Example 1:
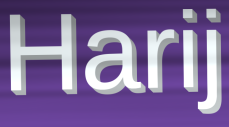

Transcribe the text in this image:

Harij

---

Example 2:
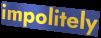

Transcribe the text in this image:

impolitely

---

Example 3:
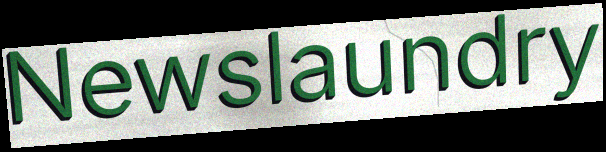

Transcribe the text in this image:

Newslaundry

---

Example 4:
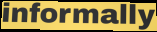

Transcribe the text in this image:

informally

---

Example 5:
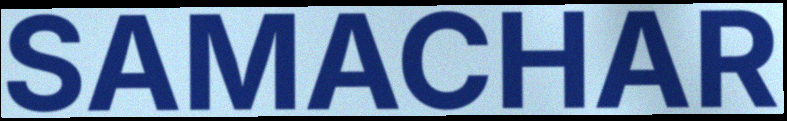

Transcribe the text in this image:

SAMACHAR